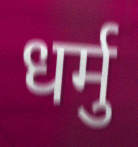
धर्मु